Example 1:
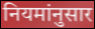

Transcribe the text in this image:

नियमांनुसार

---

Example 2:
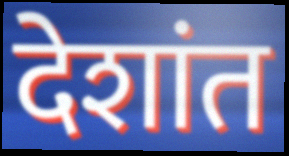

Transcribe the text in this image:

देशांत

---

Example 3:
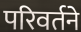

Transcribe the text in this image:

परिवर्तने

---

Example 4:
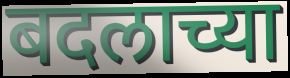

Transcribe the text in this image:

बदलाच्या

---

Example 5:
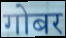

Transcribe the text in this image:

गोबर